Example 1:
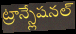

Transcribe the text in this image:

ట్రాన్స్లేషనల్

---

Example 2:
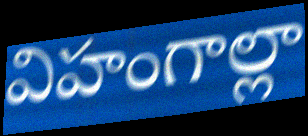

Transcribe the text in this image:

విహంగాల్లా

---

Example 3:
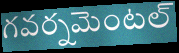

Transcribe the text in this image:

గవర్నమెంటల్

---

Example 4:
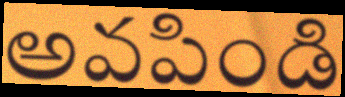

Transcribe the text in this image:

అవపిండి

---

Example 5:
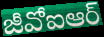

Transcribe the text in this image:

జీవోఐఆర్